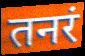
तनरं